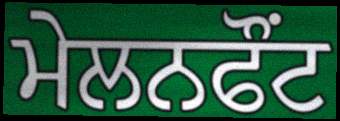
ਮੇਲਨਫੌਂਟ